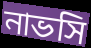
নাভসি